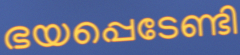
ഭയപ്പെടേണ്ടി